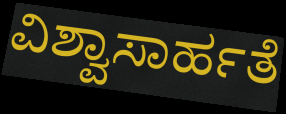
ವಿಶ್ವಾಸಾರ್ಹತೆ